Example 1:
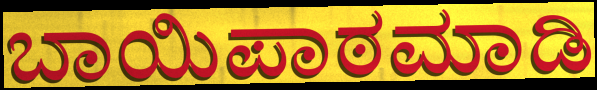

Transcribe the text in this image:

ಬಾಯಿಪಾಠಮಾಡಿ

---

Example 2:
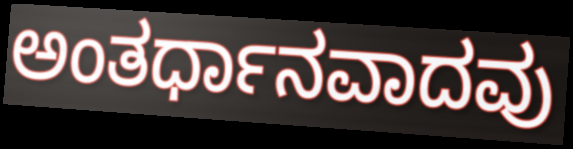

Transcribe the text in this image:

ಅಂತರ್ಧಾನವಾದವು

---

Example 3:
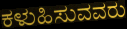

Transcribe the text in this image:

ಕಳುಹಿಸುವವರು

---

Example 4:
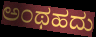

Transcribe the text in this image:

ಅಂಥಹದು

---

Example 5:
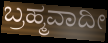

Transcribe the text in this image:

ಬ್ರಹ್ಮವಾದೀ